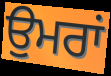
ਉੁਮਰਾਂ